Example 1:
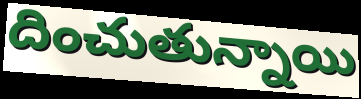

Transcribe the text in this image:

దించుతున్నాయి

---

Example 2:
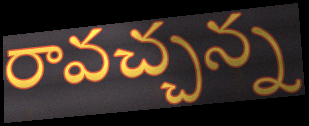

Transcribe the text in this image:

రావచ్చన్న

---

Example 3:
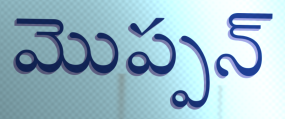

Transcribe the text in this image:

మొప్పన్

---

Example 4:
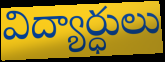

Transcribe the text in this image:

విద్యార్ధులు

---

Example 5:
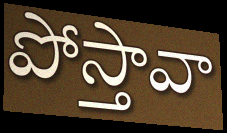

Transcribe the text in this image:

పోస్తావా